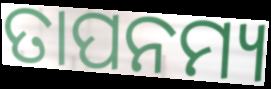
ତାପନମ୍ୟ